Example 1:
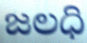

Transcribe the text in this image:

జలధి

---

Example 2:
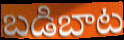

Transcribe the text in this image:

బడిబాట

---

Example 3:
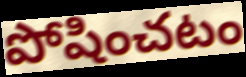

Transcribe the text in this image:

పోషించటం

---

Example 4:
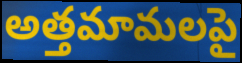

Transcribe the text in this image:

అత్తమామలపై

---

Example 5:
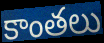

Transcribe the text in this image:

కాంతలు